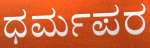
ಧರ್ಮಪರ